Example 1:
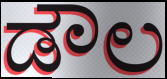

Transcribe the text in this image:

ಡೌಲ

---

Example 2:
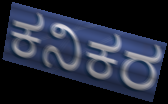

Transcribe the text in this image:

ಕನಿಕರ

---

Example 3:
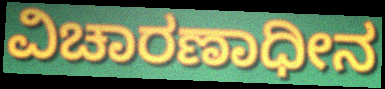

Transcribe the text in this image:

ವಿಚಾರಣಾಧೀನ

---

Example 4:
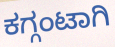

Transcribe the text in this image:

ಕಗ್ಗಂಟಾಗಿ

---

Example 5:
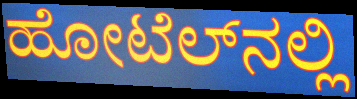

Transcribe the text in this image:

ಹೋಟೆಲ್‌ನಲ್ಲಿ